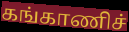
கங்காணிச்